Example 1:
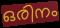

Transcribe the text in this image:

ഒരിനം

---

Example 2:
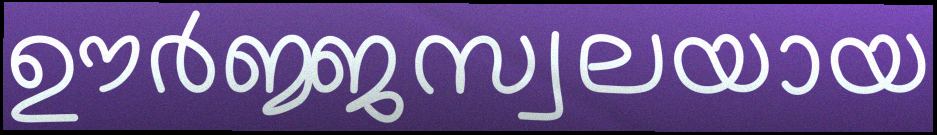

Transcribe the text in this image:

ഊർജ്ജസ്വലയായ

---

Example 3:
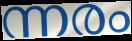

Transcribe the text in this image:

ന്നരം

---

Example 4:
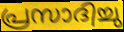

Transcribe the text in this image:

പ്രസാദിച്ചു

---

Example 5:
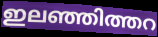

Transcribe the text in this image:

ഇലഞ്ഞിത്തറ